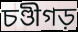
চণ্ডীগড়